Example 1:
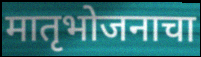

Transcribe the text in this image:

मातृभोजनाचा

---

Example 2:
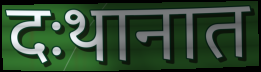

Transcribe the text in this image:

दःथानात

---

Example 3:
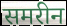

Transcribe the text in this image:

समरीन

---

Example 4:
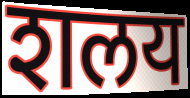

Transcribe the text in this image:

शलय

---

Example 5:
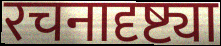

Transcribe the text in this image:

रचनादृष्ट्या